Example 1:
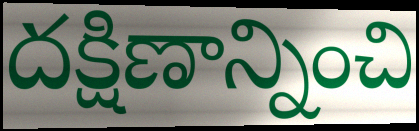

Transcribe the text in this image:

దక్షిణాన్నించి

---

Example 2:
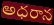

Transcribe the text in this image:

అధరాన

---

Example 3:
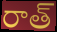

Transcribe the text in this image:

రాత్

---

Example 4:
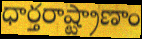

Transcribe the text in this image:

ధార్తరాష్ట్రాణాం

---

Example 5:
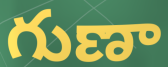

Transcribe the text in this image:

గుణా